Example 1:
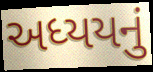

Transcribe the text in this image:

અધ્યયનું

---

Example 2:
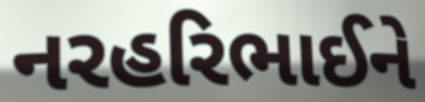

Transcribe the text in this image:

નરહરિભાઈને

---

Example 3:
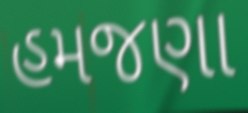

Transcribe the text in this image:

હમજણા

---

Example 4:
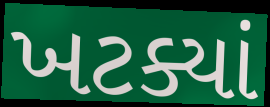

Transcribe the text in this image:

ખટક્યાં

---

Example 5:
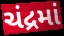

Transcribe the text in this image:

ચંદ્રમાં